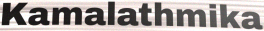
Kamalathmika